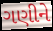
ગણીને